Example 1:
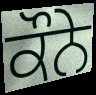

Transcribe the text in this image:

ਕੌਨੇ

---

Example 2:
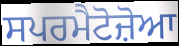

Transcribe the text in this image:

ਸਪਰਮੈਟੋਜ਼ੋਆ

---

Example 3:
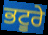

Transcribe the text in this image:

ਭਟੂਰੇ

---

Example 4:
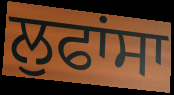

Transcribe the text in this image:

ਲੁਫਾਂਸਾ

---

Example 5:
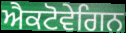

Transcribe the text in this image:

ਐਕਟੋਵੇਗਿਨ